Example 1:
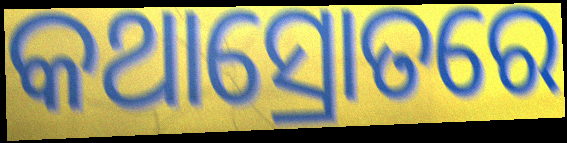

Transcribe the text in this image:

କଥାସ୍ରୋତରେ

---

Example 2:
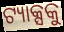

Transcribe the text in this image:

ଟ୍ୟାକ୍ସକୁ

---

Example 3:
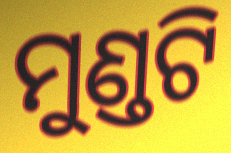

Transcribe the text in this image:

ମୁଣ୍ଡଟି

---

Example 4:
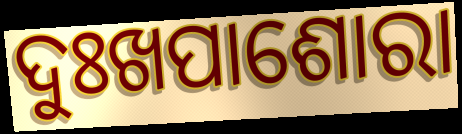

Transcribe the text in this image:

ଦୁଃଖପାଶୋରା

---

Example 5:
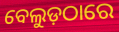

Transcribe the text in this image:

ବେଲୁଡ଼ଠାରେ